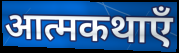
आत्मकथाएँ